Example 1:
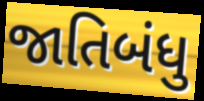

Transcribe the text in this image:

જાતિબંધુ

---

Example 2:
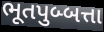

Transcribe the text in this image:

ભૂતપુબ્બત્તા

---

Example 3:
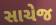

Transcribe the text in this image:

સાચેજ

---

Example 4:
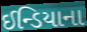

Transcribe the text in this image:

ઈન્ડિયાના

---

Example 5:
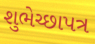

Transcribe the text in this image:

શુભેચ્છાપત્ર